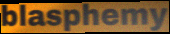
blasphemy